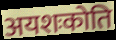
अयशःकोति